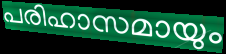
പരിഹാസമായും